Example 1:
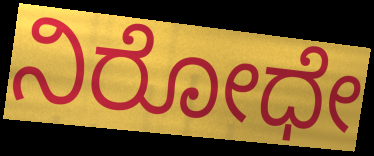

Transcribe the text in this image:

ನಿರೋಧೇ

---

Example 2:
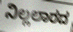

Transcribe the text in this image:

ನಿಲ್ಲಲಾರದ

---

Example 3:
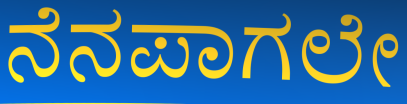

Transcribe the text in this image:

ನೆನಪಾಗಲೇ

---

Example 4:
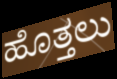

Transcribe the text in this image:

ಹೊತ್ತಲು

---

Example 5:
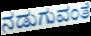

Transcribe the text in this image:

ನಡುಗುವಂತೆ